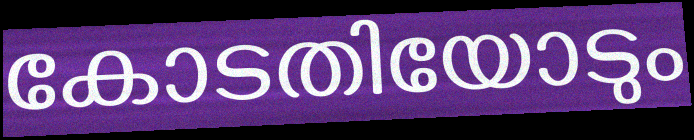
കോടതിയോടും